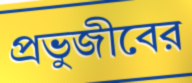
প্রভুজীবের